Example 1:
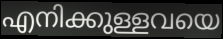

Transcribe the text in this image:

എനിക്കുള്ളവയെ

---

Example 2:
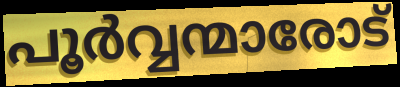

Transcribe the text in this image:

പൂർവ്വന്മാരോട്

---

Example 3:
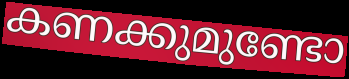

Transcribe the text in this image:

കണക്കുമുണ്ടോ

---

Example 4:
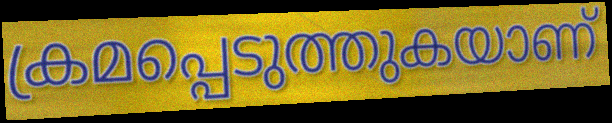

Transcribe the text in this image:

ക്രമപ്പെടുത്തുകയാണ്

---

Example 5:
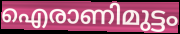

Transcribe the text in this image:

ഐരാണിമുട്ടം